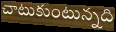
చాటుకుంటున్నది